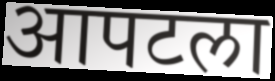
आपटला